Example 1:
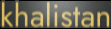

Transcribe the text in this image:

khalistan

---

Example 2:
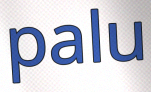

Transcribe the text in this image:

palu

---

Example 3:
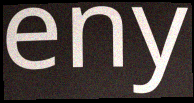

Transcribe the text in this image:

eny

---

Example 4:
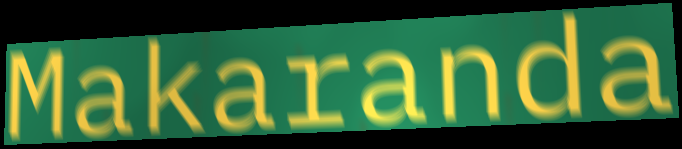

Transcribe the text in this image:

Makaranda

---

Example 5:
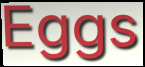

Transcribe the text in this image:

Eggs